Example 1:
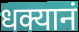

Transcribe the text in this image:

धक्यानं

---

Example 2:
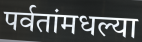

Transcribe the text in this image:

पर्वतांमधल्या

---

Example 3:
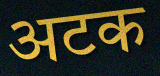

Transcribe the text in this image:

अटक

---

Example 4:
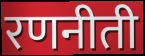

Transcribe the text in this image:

रणनीती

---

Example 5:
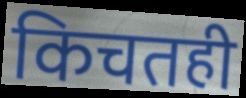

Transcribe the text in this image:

किचतही